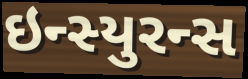
ઇન્સ્યુરન્સ